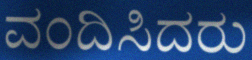
ವಂದಿಸಿದರು